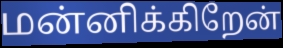
மன்னிக்கிறேன்